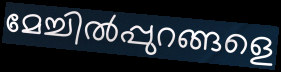
മേച്ചിൽപ്പുറങ്ങളെ